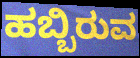
ಹಬ್ಬಿರುವ